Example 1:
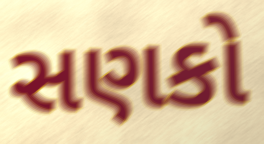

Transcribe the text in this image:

સણકો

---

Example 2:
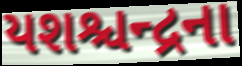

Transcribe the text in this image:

યશશ્ચન્દ્રના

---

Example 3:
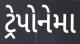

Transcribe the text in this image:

ટ્રેપોનેમા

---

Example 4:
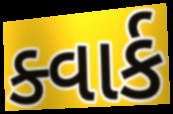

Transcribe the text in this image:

ક્વાર્ક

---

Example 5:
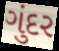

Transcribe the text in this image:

ગુંદર